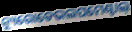
ନ୍ୟୁରୋଡେଭଲପମେଣ୍ଟାଲ୍